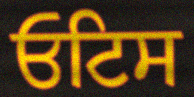
ਓਟਿਸ